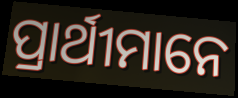
ପ୍ରାର୍ଥୀମାନେ